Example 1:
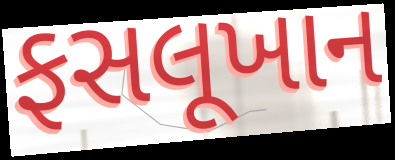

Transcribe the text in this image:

ફસલૂખાન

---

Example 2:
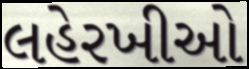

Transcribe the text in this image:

લહેરખીઓ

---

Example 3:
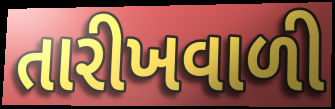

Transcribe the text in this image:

તારીખવાળી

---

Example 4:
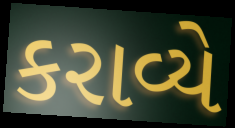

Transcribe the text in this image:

કરાવ્યે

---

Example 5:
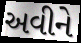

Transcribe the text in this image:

અવીને